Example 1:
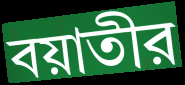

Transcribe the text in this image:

বয়াতীর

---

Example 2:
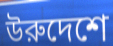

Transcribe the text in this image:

উরুদেশে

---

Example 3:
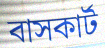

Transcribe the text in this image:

বাসকার্ট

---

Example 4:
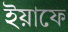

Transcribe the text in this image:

ইয়াফে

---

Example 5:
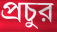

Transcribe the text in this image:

প্রচুর